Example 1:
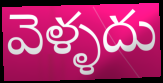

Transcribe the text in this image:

వెళ్ళదు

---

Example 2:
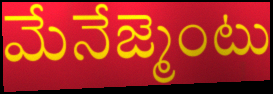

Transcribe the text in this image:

మేనేజ్మెంటు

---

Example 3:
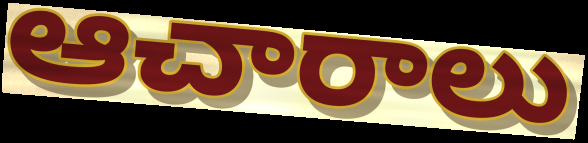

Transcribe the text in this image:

ఆచారాలు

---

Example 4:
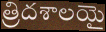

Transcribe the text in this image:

త్రిదశాలయై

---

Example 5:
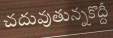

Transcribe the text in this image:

చదువుతున్నకొద్దీ